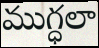
ముగ్ధలా